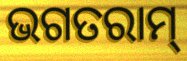
ଭଗତରାମ୍